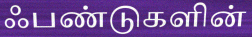
ஃபண்டுகளின்